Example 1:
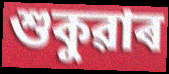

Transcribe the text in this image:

শুকুৱাৰ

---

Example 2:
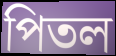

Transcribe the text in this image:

পিতল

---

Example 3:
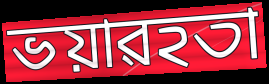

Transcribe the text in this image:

ভয়াৱহতা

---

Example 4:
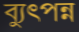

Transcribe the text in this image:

ব্যুৎপন্ন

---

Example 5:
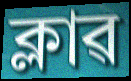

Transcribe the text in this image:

ক্লাৱ